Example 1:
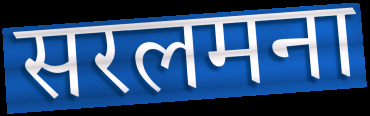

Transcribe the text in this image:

सरलमना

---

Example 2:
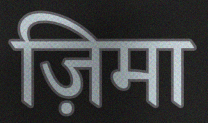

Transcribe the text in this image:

ज़िमा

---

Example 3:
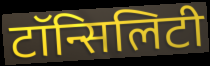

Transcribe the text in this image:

टॉन्सिलिटी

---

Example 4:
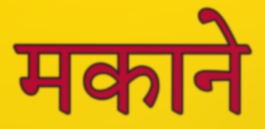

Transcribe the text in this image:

मकाने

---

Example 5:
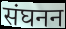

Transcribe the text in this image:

संघनन